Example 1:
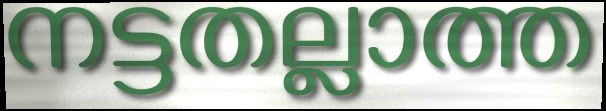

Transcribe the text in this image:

നട്ടതല്ലാത്ത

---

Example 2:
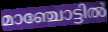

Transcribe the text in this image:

മാഞ്ചോട്ടിൽ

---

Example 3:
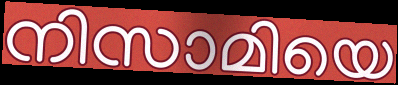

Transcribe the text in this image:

നിസാമിയെ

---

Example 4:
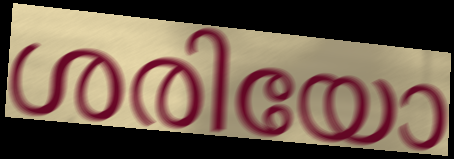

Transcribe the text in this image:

ശരിയോ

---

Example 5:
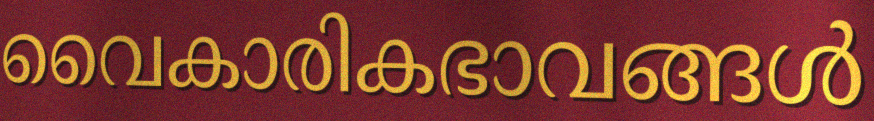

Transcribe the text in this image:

വൈകാരികഭാവങ്ങൾ